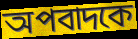
অপবাদকে